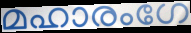
മഹാരംഗേ